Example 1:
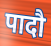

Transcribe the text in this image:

पादौ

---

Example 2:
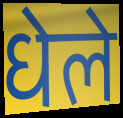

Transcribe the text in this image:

धेले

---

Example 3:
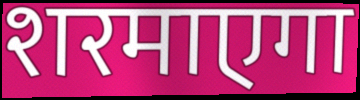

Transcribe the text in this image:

शरमाएगा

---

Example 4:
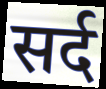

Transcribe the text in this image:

सर्द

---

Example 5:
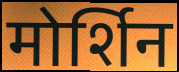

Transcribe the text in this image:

मोर्शिन